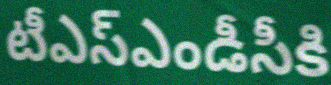
టీఎస్ఎండీసీకి